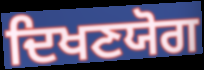
ਦਿਖਣਯੋਗ